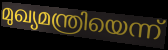
മുഖ്യമന്ത്രിയെന്ന്